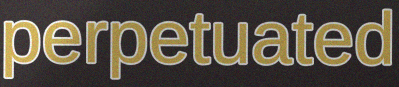
perpetuated